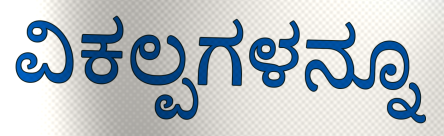
ವಿಕಲ್ಪಗಳನ್ನೂ